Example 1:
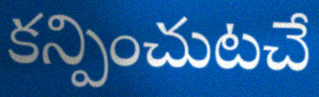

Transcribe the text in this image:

కన్పించుటచే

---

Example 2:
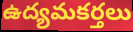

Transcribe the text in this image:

ఉద్యమకర్తలు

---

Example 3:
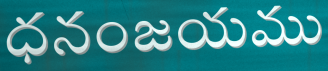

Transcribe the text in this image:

ధనంజయము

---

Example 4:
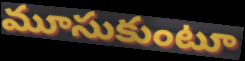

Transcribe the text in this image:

మూసుకుంటూ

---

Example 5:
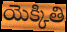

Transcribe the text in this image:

యెక్కితి